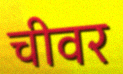
चीवर